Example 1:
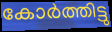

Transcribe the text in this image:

കോർത്തിട്ടു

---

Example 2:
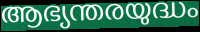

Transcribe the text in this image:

ആഭ്യന്തരയുദ്ധം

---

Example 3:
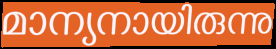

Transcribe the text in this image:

മാന്യനായിരുന്നു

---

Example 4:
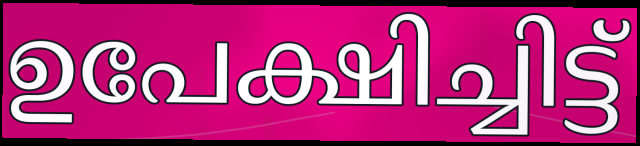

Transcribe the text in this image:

ഉപേക്ഷിച്ചിട്ട്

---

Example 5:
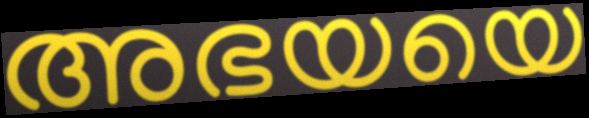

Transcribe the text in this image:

അഭയയെ